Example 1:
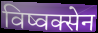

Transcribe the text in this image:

विष्वक्सेन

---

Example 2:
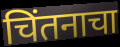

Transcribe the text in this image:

चिंतनाचा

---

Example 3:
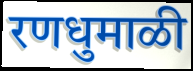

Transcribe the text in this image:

रणधुमाळी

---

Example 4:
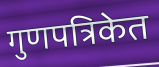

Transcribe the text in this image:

गुणपत्रिकेत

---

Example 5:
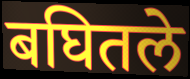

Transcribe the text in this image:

बघितले